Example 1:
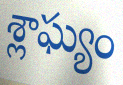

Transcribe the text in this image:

శ్లాఘ్యం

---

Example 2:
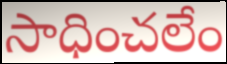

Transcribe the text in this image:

సాధించలేం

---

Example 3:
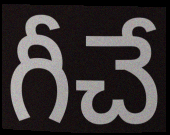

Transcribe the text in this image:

గీచే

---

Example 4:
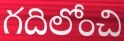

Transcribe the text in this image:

గదిలోంచి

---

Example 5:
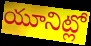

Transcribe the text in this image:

యూనిట్లో